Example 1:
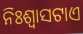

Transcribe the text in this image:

ନିଃଶ୍ଵାସଟାଏ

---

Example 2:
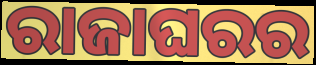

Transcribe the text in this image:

ରାଜାଘରର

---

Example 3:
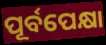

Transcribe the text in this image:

ପୂର୍ବପେକ୍ଷା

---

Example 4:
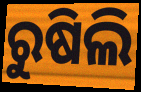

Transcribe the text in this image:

ରୁଷିଲି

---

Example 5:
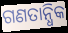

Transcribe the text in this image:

ଗଣତାନ୍ଧିକ